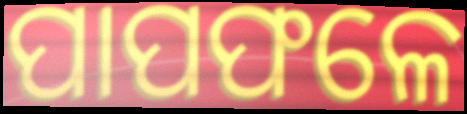
ପାପଫଳେ